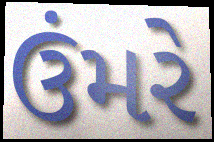
ઉંમરે